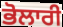
ਭੋਲਾਰੀ